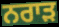
ਨਰਾੜ